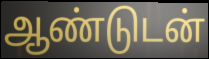
ஆண்டுடன்